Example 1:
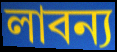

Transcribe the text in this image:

লাবন্য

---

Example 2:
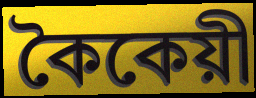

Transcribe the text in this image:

কৈকেয়ী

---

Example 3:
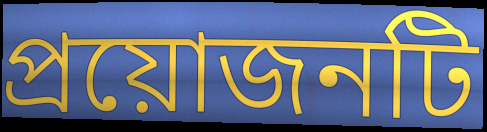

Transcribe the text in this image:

প্রয়োজনটি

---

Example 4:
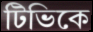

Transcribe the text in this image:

টিভিকে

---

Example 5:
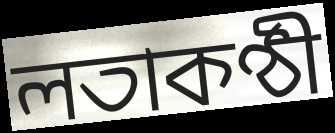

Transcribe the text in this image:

লতাকণ্ঠী